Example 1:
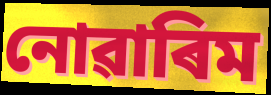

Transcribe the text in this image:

নোৱাৰিম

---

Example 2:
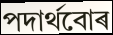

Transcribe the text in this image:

পদাৰ্থবোৰ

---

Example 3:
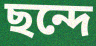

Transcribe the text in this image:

ছন্দে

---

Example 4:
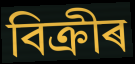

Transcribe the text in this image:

বিক্ৰীৰ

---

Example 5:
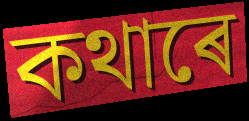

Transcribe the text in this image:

কথাৰে